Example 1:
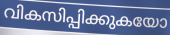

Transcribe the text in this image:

വികസിപ്പിക്കുകയോ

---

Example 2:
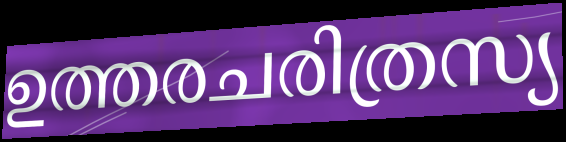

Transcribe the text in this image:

ഉത്തരചരിത്രസ്യ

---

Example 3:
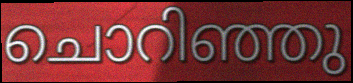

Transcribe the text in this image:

ചൊറിഞ്ഞു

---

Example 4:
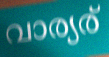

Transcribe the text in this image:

വാര്യര്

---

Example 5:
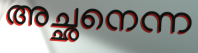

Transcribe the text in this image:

അച്ഛനെന്ന